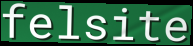
felsite